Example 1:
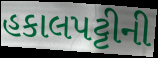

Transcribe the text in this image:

હકાલપટ્ટીની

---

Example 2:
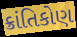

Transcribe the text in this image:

ક્રાંતિકોણ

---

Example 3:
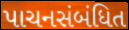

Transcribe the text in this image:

પાચનસંબંધિત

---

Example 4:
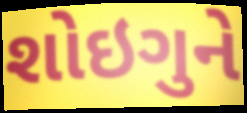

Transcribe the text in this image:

શોઇગુને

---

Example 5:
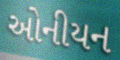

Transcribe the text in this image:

ઓનીયન